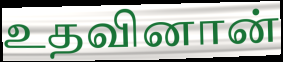
உதவினான்